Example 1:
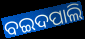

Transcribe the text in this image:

ବଇଦପାଲି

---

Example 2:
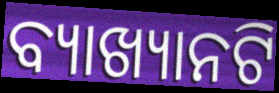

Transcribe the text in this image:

ବ୍ୟାଖ୍ୟାନଟି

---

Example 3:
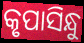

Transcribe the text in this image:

କୃପାସିନ୍ଧୁ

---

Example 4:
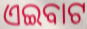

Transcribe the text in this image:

ଏଇବାଟ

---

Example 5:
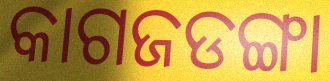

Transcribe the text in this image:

କାଗଜଡଙ୍ଗା